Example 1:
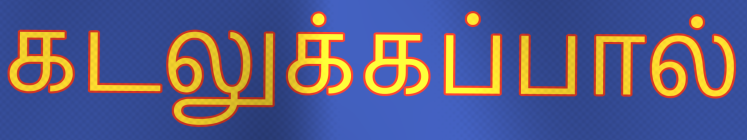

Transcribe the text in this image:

கடலுக்கப்பால்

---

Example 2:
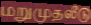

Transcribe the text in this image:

மறுமுதலீடு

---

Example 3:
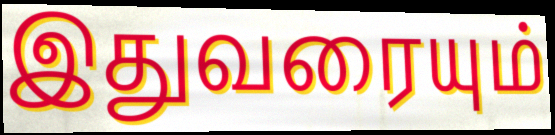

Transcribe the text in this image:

இதுவரையும்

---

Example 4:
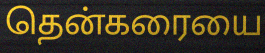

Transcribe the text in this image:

தென்கரையை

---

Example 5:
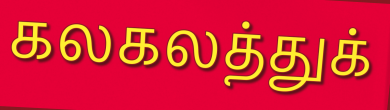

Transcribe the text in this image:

கலகலத்துக்